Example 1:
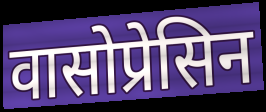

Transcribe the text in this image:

वासोप्रेसिन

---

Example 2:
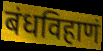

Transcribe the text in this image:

बंधविहाणं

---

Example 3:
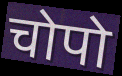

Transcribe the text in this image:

चोपो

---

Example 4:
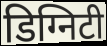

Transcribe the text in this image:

डिग्निटी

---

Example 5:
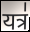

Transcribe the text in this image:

यत्र॑